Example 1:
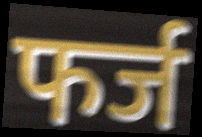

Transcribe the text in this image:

फर्ज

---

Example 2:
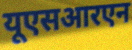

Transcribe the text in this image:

यूएसआरएन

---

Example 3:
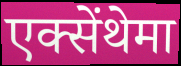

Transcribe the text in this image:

एक्सेंथेमा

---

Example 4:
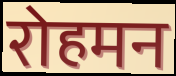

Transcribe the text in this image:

रोहमन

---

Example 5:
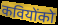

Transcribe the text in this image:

कवियोंको